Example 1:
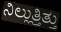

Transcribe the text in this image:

ನಿಲ್ಲುತ್ತಿತ್ತು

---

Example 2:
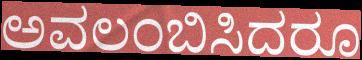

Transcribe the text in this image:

ಅವಲಂಬಿಸಿದರೂ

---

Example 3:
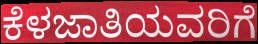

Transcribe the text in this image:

ಕೆಳಜಾತಿಯವರಿಗೆ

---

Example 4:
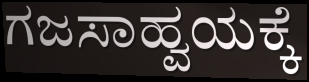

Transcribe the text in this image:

ಗಜಸಾಹ್ವಯಕ್ಕೆ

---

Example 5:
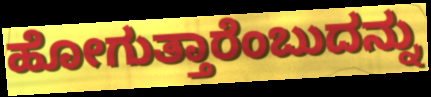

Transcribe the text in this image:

ಹೋಗುತ್ತಾರೆಂಬುದನ್ನು